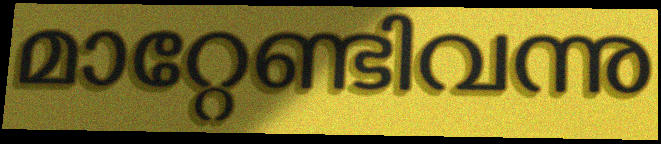
മാറ്റേണ്ടിവന്നു